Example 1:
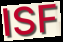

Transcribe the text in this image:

ISF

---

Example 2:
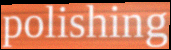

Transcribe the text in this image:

polishing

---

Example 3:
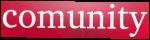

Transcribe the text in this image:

comunity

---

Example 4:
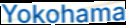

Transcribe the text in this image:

Yokohama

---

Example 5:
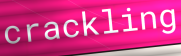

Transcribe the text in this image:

crackling